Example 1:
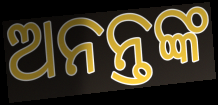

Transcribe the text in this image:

ଅନନ୍ତଙ୍କ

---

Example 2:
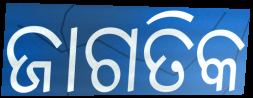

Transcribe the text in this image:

ଜାଗତିକ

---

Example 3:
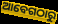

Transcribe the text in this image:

ଆବେଗଠାରୁ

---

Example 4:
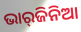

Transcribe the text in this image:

ଭାର୍‌ଜିନିଆ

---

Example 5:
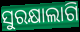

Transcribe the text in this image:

ସୁରକ୍ଷାଲାଗି